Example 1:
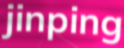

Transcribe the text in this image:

jinping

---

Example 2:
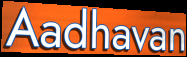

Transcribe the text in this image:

Aadhavan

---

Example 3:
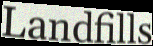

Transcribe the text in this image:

Landfills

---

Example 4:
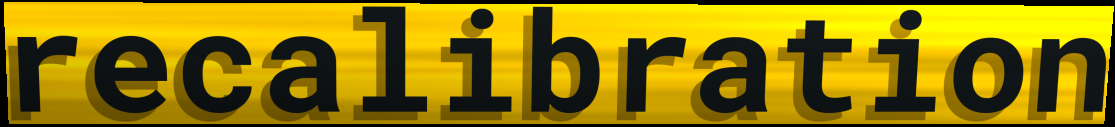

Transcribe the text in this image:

recalibration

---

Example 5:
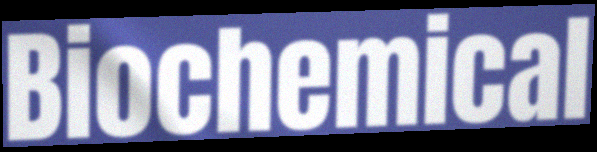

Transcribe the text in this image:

Biochemical